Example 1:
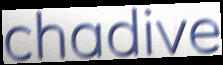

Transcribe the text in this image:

chadive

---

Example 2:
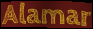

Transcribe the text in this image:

Alamar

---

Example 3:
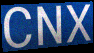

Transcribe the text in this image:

CNX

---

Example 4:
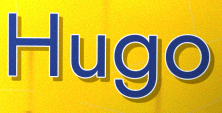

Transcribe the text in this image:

Hugo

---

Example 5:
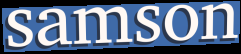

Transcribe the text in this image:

samson